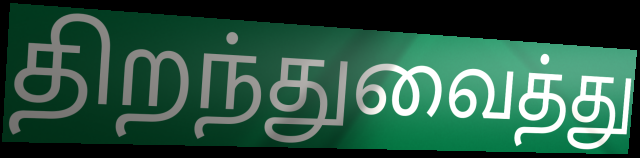
திறந்துவைத்து